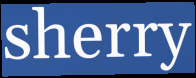
sherry